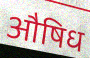
औषिध